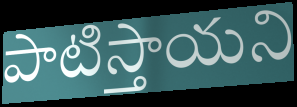
పాటిస్తాయని